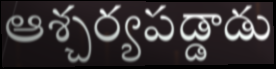
ఆశ్చర్యపడ్డాడు